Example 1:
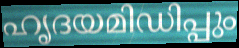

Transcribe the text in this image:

ഹൃദയമിഡിപ്പും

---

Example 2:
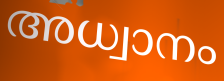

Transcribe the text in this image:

അധ്വാനം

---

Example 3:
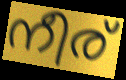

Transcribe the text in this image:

നീര്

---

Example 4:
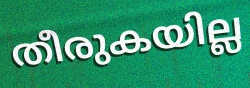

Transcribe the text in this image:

തീരുകയില്ല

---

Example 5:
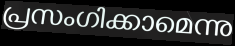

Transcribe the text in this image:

പ്രസംഗിക്കാമെന്നു